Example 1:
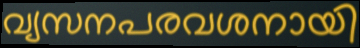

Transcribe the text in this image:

വ്യസനപരവശനായി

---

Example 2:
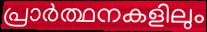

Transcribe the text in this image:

പ്രാർത്ഥനകളിലും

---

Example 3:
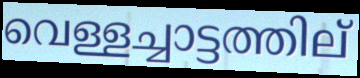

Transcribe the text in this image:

വെള്ളച്ചാട്ടത്തില്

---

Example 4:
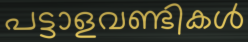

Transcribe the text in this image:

പട്ടാളവണ്ടികൾ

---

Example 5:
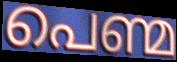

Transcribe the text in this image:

പെണ്മ